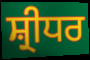
ਸ਼੍ਰੀਧਰ